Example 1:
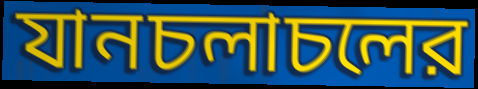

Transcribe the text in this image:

যানচলাচলের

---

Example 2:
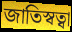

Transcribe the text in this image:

জাতিস্বত্বা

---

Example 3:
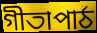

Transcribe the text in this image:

গীতাপাঠ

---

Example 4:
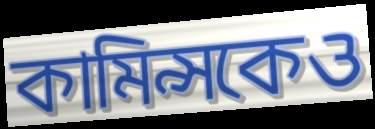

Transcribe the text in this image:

কামিন্সকেও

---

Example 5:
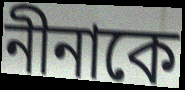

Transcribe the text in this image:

নীনাকে